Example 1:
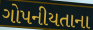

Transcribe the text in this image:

ગોપનીયતાના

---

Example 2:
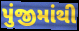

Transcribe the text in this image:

પુંજીમાંથી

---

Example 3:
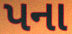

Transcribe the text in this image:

પના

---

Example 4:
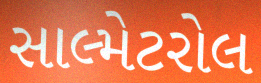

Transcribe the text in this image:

સાલ્મેટરોલ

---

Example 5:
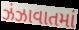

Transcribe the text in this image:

ઝંઝાવાતમાં